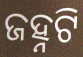
ଜହ୍ନଟି